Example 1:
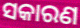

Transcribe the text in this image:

ସକାରଣ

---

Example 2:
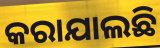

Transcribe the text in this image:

କରାଯାଲଛି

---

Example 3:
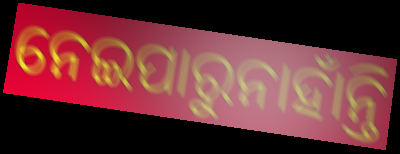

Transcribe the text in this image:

ନେଇପାରୁନାହାଁନ୍ତି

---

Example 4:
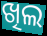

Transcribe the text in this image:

ଖିଲ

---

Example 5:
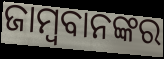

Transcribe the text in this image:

ଜାମ୍ବବାନଙ୍କର